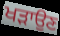
ਖੜਾਉਣ